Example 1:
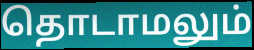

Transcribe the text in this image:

தொடாமலும்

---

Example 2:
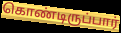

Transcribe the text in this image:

கொண்டிருப்பார்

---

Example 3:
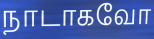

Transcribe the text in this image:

நாடாகவோ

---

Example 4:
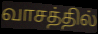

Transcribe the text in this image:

வாசத்தில்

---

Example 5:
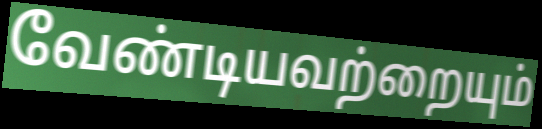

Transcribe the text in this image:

வேண்டியவற்றையும்